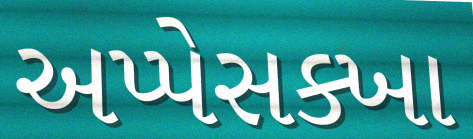
અપ્પેસક્ખા